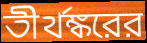
তীর্থঙ্করের